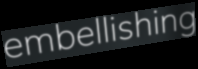
embellishing